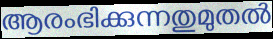
ആരംഭിക്കുന്നതുമുതൽ